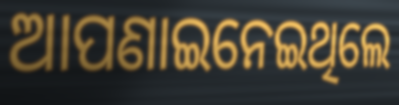
ଆପଣାଇନେଇଥିଲେ